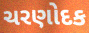
ચરણોદક